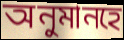
অনুমানহে